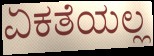
ಏಕತೆಯಲ್ಲ